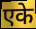
एके